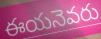
ఈయనెవరు